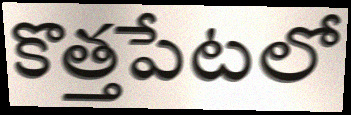
కొత్తపేటలో